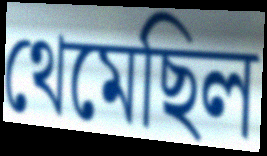
থেমেছিল